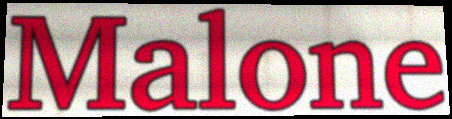
Malone